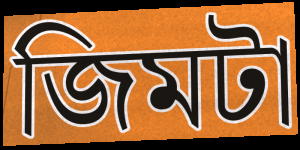
জিমটা